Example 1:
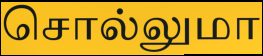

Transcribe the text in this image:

சொல்லுமா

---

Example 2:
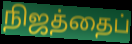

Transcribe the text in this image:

நிஜத்தைப்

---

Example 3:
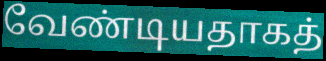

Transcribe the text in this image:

வேண்டியதாகத்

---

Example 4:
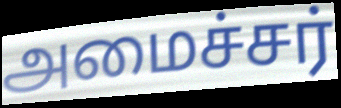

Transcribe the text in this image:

அமைச்சர்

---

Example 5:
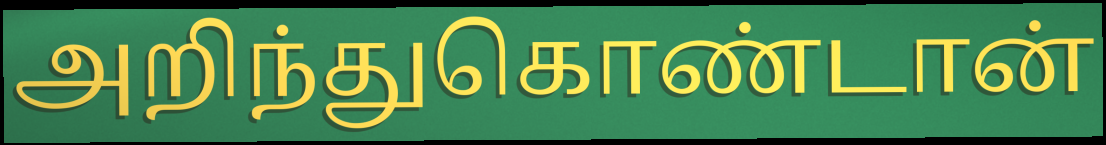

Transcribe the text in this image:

அறிந்துகொண்டான்